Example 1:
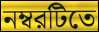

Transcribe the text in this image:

নম্বরটিতে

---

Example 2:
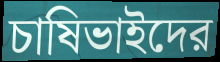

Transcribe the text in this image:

চাষিভাইদের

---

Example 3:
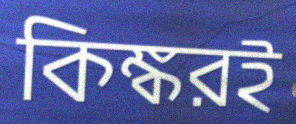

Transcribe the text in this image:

কিঙ্করই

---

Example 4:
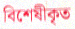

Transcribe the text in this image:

বিশেষীকৃত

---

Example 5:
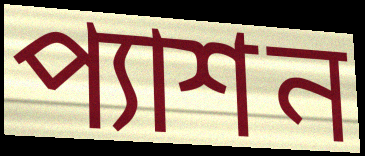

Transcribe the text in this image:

প্যাশন